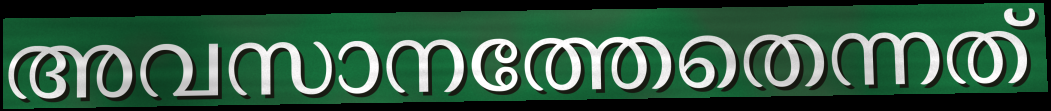
അവസാനത്തേതെന്നത്